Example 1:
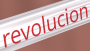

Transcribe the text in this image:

revolucion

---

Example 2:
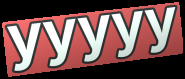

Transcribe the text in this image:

yyyyy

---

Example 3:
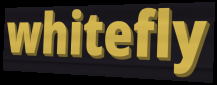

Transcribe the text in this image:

whitefly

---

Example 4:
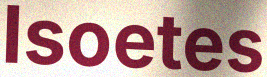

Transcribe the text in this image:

Isoetes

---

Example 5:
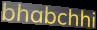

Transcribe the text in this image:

bhabchhi